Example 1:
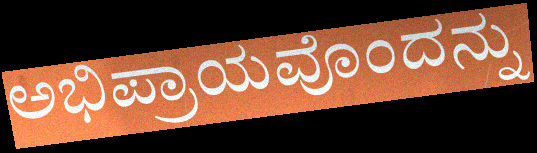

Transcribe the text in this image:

ಅಭಿಪ್ರಾಯವೊಂದನ್ನು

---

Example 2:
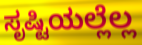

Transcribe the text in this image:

ಸೃಷ್ಟಿಯಲ್ಲೆಲ್ಲ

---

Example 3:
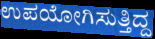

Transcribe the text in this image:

ಉಪಯೋಗಿಸುತ್ತಿದ್ದ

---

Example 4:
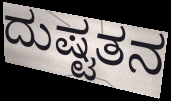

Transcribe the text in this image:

ದುಷ್ಟತನ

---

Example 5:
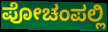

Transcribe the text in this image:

ಪೋಚಂಪಲ್ಲಿ